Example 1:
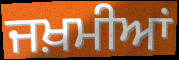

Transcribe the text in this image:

ਜਖ਼ਮੀਆਂ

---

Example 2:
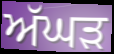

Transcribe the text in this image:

ਅੱਘੜ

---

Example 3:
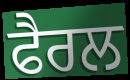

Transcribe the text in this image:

ਫੈਰਲ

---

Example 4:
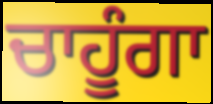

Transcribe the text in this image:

ਚਾਹੂੰਗਾ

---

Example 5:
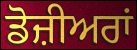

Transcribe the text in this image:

ਡੋਜ਼ੀਅਰਾਂ